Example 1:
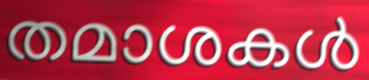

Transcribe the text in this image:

തമാശകൾ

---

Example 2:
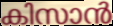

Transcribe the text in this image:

കിസാൻ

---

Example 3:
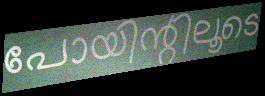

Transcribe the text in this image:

പോയിന്റിലൂടെ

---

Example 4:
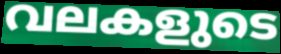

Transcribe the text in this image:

വലകളുടെ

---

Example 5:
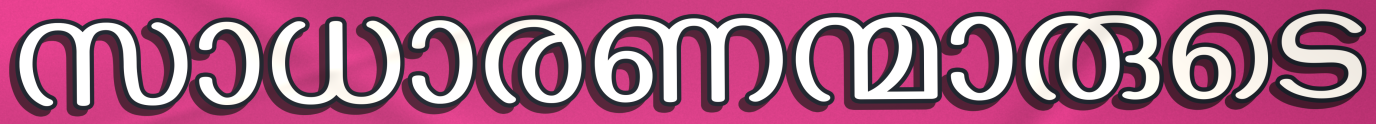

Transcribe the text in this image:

സാധാരണന്മാരുടെ